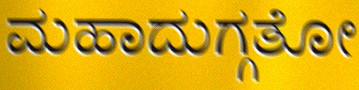
ಮಹಾದುಗ್ಗತೋ